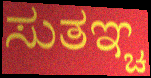
ಸುತಞ್ಚ